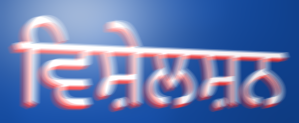
ਵਿਸ਼ੇਲਸ਼ਨ